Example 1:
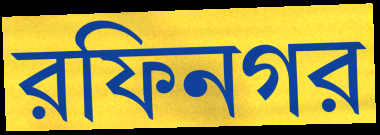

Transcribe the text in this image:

রফিনগর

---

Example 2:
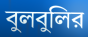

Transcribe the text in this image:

বুলবুলির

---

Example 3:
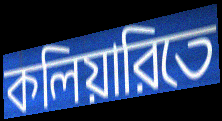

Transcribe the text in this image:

কলিয়ারিতে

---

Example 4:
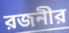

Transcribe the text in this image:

রজনীর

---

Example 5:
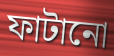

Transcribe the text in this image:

ফাটানো